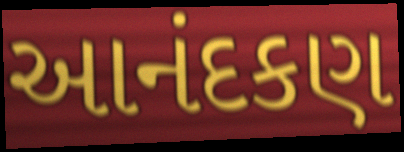
આનંદકણ